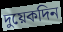
দুয়েকদিন